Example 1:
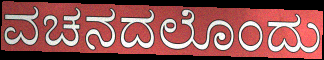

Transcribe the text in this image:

ವಚನದಲೊಂದು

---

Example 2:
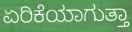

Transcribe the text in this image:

ಏರಿಕೆಯಾಗುತ್ತಾ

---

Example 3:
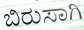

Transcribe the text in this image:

ಬಿರುಸಾಗಿ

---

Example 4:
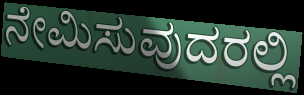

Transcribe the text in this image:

ನೇಮಿಸುವುದರಲ್ಲಿ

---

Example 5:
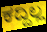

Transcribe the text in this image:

ಕದ್ದಿಲ್ಲ